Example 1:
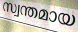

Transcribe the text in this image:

സ്വന്തമായ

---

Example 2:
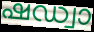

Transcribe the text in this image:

ഷഡ്വാ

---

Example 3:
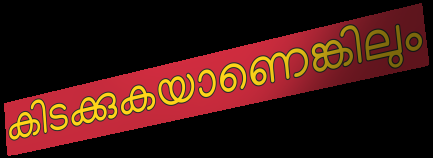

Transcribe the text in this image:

കിടക്കുകയാണെങ്കിലും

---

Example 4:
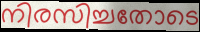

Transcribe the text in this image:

നിരസിച്ചതോടെ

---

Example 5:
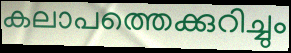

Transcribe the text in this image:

കലാപത്തെക്കുറിച്ചും